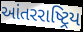
આંતરરાષ્ટ્રિય